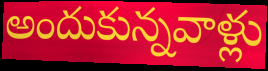
అందుకున్నవాళ్లు